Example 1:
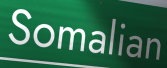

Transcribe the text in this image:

Somalian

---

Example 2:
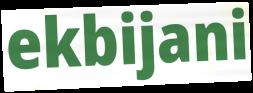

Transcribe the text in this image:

ekbijani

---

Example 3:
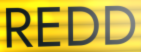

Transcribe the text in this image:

REDD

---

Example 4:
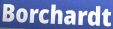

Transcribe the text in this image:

Borchardt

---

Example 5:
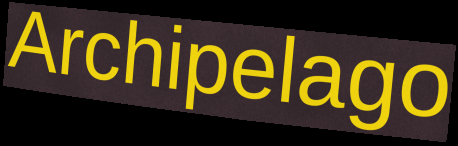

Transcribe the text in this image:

Archipelago